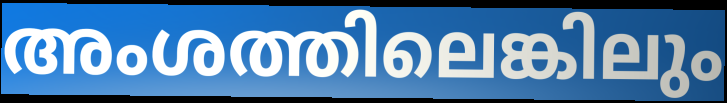
അംശത്തിലെങ്കിലും